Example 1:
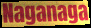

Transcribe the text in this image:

Naganaga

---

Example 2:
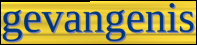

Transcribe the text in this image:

gevangenis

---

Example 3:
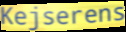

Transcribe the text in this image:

Kejserens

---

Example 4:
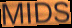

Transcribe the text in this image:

MIDS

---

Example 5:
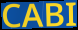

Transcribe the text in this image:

CABI